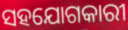
ସହଯୋଗକାରୀ